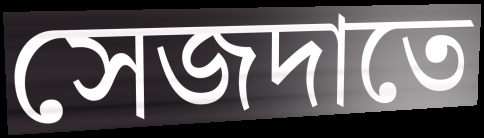
সেজদাতে